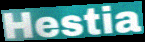
Hestia